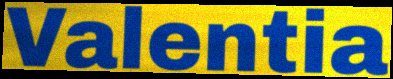
Valentia